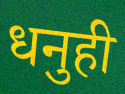
धनुही